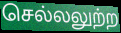
செல்லலுற்ற